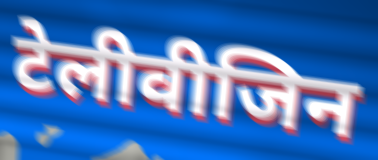
टेलीवीजिन